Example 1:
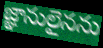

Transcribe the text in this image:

జ్ఞానులైనను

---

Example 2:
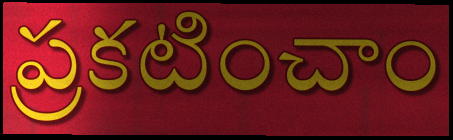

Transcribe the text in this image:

ప్రకటించాం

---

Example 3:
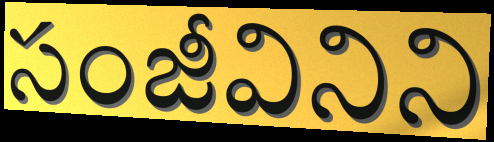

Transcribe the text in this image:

సంజీవినిని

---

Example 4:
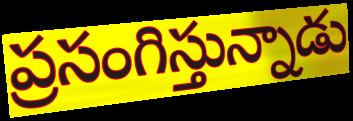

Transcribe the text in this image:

ప్రసంగిస్తున్నాడు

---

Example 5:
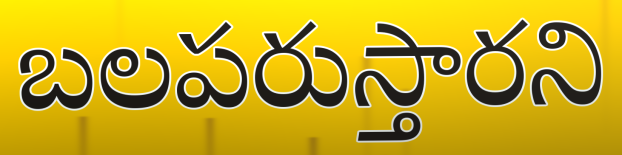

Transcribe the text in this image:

బలపరుస్తారని